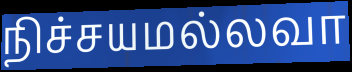
நிச்சயமல்லவா